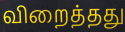
விறைத்தது